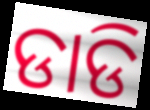
ଡାଡି